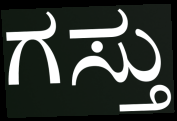
ಗಸ್ತು